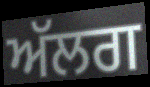
ਅੱਲਗ